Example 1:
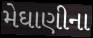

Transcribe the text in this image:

મેઘાણીના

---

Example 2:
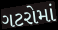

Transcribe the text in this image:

ગટરોમાં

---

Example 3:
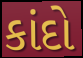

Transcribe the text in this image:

કાંદો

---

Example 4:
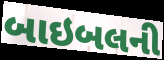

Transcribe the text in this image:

બાઇબલની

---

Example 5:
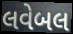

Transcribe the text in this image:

લવેબલ